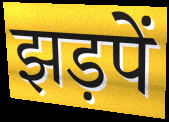
झड़पें